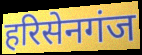
हरिसेनगंज